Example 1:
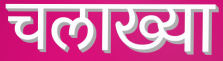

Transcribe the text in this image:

चलाख्या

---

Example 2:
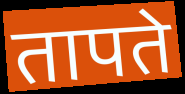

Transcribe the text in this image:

तापते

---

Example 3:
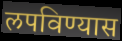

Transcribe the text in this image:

लपविण्यास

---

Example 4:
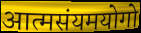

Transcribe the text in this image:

आत्मसंयमयोगो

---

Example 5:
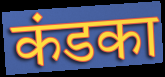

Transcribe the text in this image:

कंडका